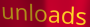
unloads